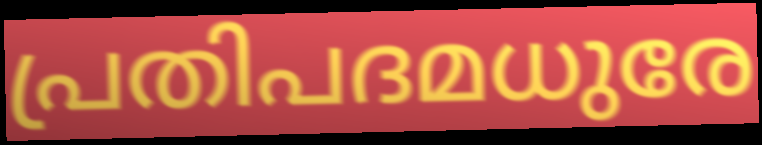
പ്രതിപദമധുരേ